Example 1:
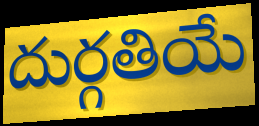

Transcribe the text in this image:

దుర్గతియే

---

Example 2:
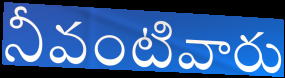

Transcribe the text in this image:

నీవంటివారు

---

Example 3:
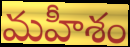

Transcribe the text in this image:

మహీశం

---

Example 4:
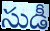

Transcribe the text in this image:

సుడీ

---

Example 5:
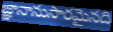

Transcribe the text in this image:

జ్ఞానానుసారమైనది